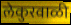
लेकुरवाळी